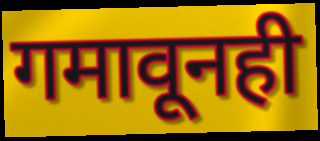
गमावूनही